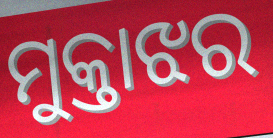
ମୁକ୍ତାଝର